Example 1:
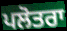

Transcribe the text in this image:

ਪਲੋਤਰਾ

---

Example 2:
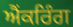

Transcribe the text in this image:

ਐਂਕਰਿੰਗ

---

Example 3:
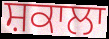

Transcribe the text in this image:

ਸ਼ਕਾਲਾ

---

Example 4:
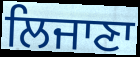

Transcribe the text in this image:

ਲਿਜਾਣਾ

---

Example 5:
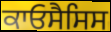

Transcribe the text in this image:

ਕਾਓਸੈਸਿਸ